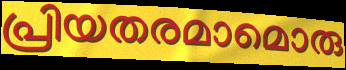
പ്രിയതരമാമൊരു